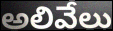
అలివేలు